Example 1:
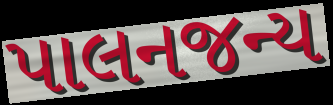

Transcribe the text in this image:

પાલનજન્ય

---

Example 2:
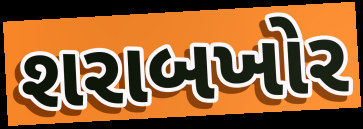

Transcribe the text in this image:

શરાબખોર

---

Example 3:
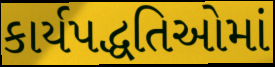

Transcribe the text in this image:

કાર્યપદ્ધતિઓમાં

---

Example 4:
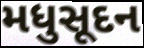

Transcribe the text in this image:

મધુસૂદન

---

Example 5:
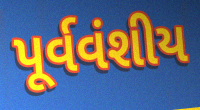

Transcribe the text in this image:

પૂર્વવંશીય